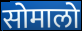
सोमालो